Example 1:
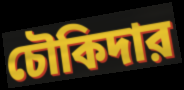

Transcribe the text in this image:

চৌকিদার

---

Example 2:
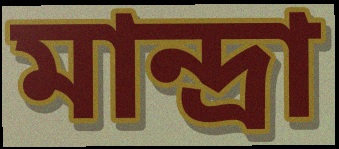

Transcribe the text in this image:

মান্দ্রা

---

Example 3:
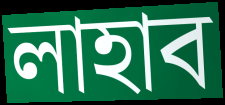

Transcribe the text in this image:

লাহাব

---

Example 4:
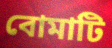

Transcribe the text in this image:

বোমাটি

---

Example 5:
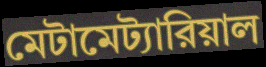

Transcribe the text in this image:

মেটামেট্যারিয়াল